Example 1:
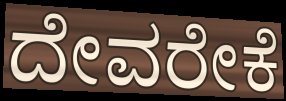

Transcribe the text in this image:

ದೇವರೇಕೆ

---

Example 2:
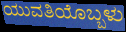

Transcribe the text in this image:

ಯುವತಿಯೊಬ್ಬಳು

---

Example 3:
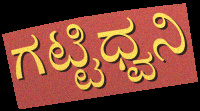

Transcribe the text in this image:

ಗಟ್ಟಿಧ್ವನಿ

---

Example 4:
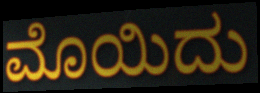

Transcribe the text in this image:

ಮೊಯಿದು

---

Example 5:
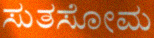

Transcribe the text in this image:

ಸುತಸೋಮ